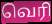
வெரி